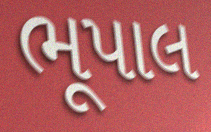
ભૂપાલ